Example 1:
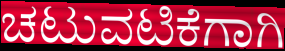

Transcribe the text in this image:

ಚಟುವಟಿಕೆಗಾಗಿ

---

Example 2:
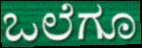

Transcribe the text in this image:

ಒಲೆಗೂ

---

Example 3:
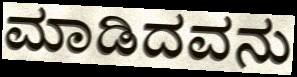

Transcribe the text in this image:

ಮಾಡಿದವನು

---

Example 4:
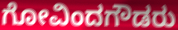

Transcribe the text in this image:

ಗೋವಿಂದಗೌಡರು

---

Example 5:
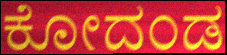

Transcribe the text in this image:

ಕೋದಂಡ